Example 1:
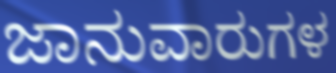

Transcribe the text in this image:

ಜಾನುವಾರುಗಳ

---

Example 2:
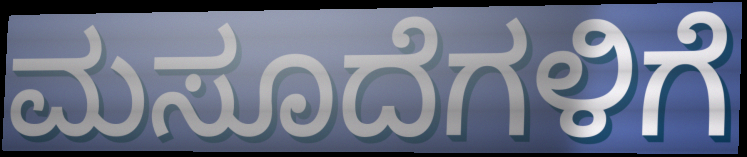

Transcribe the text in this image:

ಮಸೂದೆಗಳಿಗೆ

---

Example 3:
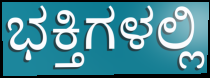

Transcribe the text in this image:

ಭಕ್ತಿಗಳಲ್ಲಿ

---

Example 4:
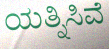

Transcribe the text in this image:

ಯತ್ನಿಸಿವೆ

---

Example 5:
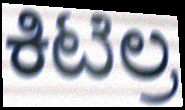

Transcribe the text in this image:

ಕಿಟೆಲ್ರ